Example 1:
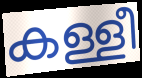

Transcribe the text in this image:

കള്ളീ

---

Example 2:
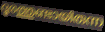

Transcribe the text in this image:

ദൂരത്തുണ്ടായിരുന്ന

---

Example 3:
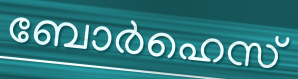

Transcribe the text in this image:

ബോർഹെസ്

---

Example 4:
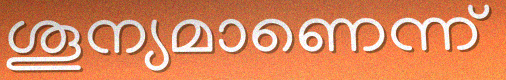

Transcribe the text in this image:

ശൂന്യമാണെന്ന്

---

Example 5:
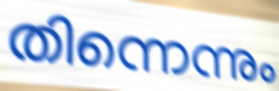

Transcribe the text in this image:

തിന്നെന്നും